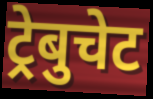
ट्रेबुचेट